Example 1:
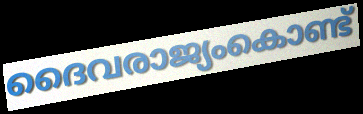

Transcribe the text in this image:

ദൈവരാജ്യംകൊണ്ട്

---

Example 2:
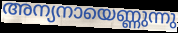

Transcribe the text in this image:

അന്യനായെണ്ണുന്നു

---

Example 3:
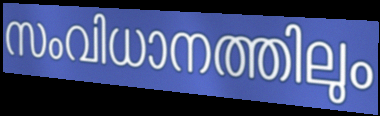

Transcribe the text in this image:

സംവിധാനത്തിലും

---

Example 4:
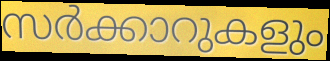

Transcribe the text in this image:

സർക്കാറുകളും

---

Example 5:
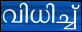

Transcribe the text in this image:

വിധിച്ച്